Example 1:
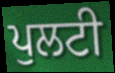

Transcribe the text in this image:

ਪੁਲਟੀ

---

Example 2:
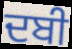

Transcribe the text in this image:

ਦਬੀ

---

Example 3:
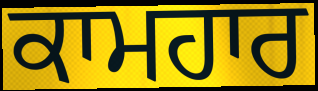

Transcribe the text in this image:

ਕਾਮਹਾਰ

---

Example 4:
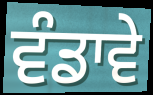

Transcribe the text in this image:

ਵੰਡਾਵੇ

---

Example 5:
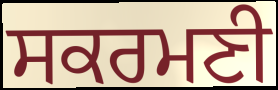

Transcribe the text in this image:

ਸਕਰਮਣੀ